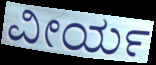
ವೀರ್ಯ